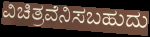
ವಿಚಿತ್ರವೆನಿಸಬಹುದು